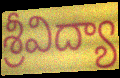
శ్రీవిద్యా